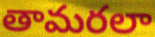
తామరలా